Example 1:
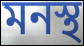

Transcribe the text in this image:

মনস্থ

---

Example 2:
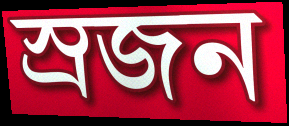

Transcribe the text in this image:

স্ৰজন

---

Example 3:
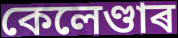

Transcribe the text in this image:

কেলেণ্ডাৰ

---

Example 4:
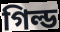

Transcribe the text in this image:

গিল্ড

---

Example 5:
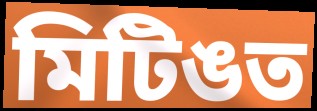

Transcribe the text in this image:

মিটিঙত